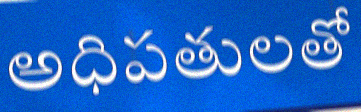
అధిపతులతో